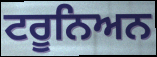
ਟਰੂਨਿਅਨ